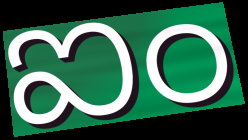
ఐం